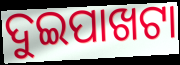
ଦୁଇପାଖଟା